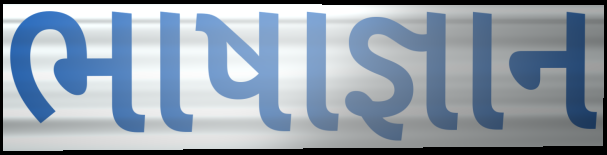
ભાષાજ્ઞાન